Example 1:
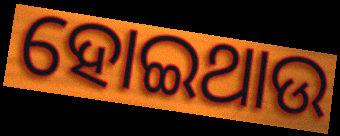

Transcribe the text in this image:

ହୋଇଥାଉ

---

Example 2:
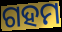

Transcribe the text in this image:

ଗହମ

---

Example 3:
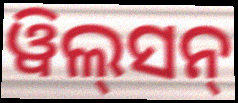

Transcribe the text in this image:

ୱିଲ୍‌ସନ୍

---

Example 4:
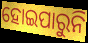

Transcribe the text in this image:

ହୋଇପାରୁନି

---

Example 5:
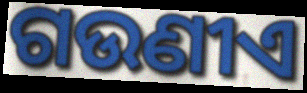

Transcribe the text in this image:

ଗଉଣୀଏ